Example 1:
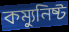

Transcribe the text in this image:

কম্যুনিষ্ট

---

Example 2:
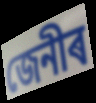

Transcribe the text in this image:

জেনীৰ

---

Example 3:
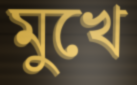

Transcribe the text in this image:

মুখে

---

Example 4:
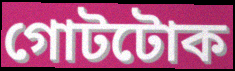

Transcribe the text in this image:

গোটটোক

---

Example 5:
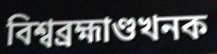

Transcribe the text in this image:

বিশ্বব্ৰহ্মাণ্ডখনক